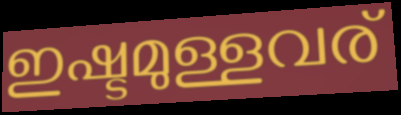
ഇഷ്ടമുള്ളവര്